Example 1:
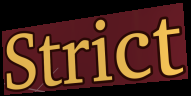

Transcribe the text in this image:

Strict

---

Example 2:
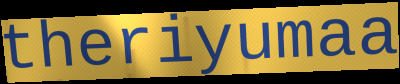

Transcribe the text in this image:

theriyumaa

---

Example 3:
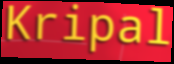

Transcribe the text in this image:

Kripal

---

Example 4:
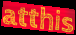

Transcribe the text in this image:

atthis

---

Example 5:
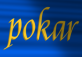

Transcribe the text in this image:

pokar